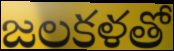
జలకళతో